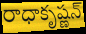
రాధాకృష్ణన్